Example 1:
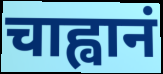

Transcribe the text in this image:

चाह्वानं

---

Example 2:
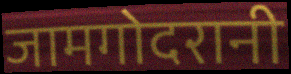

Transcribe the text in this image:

जामगोदरानी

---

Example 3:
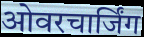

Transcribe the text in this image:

ओवरचार्जिंग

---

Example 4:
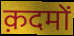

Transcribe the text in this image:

क़दमों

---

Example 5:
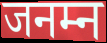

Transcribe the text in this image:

जनम्न